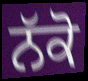
ਨੱਕੋ